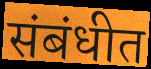
संबंधीत